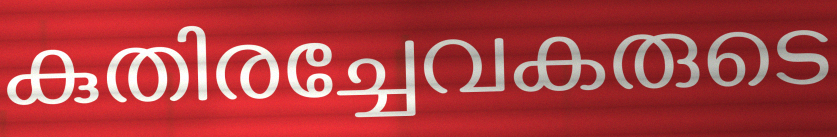
കുതിരച്ചേവകരുടെ